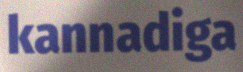
kannadiga